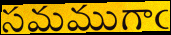
సమముగాఁ